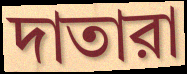
দাতারা